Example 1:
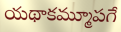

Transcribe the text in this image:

యథాకమ్మూపగే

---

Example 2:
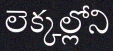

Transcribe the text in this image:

లెక్కల్లోని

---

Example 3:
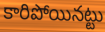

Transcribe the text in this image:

కారిపోయినట్టు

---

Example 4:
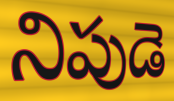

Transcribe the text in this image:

నిపుడె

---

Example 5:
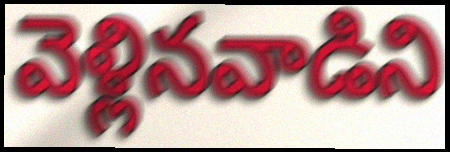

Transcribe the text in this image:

వెళ్లినవాడిని